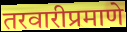
तरवारीप्रमाणे